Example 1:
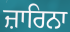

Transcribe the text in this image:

ਜ਼ਾਰਿਨਾ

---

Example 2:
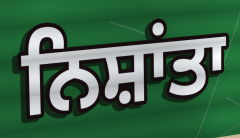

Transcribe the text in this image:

ਨਿਸ਼ਾਂਤਾ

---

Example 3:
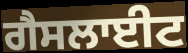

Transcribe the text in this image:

ਗੈਸਲਾਈਟ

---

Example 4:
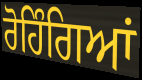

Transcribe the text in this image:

ਰੋਹਿੰਗਿਆਂ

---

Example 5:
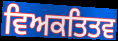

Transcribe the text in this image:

ਵਿਅਕਤਿਤਵ